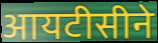
आयटीसीने